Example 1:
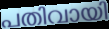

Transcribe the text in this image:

പതിവായി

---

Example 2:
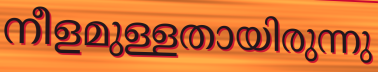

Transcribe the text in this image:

നീളമുള്ളതായിരുന്നു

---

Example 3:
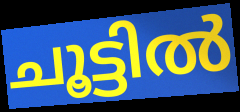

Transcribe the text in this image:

ചൂട്ടിൽ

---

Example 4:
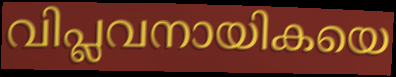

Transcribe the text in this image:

വിപ്ലവനായികയെ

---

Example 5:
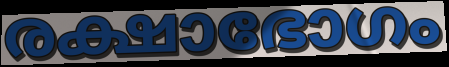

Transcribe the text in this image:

രക്ഷാഭോഗം